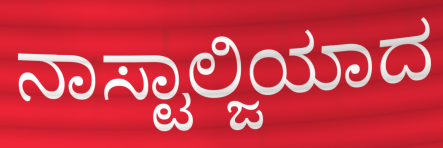
ನಾಸ್ಟಾಲ್ಜಿಯಾದ